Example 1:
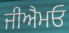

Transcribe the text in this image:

ਜੀਐਮਓ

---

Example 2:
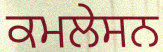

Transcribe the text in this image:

ਕਮਲੇਸਨ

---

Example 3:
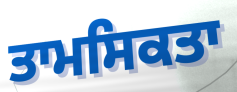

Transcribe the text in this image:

ਤਾਮਸਿਕਤਾ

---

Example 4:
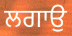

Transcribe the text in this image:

ਲਗਾਉੁ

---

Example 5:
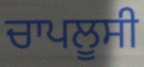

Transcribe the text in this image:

ਚਾਪਲੂਸੀ